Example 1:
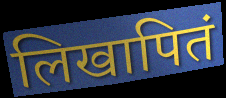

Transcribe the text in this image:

लिखापितं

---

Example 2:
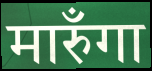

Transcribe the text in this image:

मारुँगा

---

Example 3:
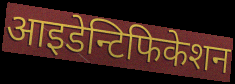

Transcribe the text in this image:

आइडेन्टिफिकेशन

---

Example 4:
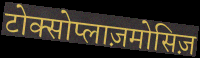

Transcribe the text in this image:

टोक्सोप्लाज़मोसिज़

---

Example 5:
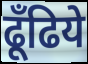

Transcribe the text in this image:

ढूँढिये